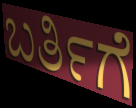
ಬರ್ತಿಗೆ